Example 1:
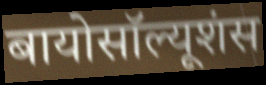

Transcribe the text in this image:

बायोसॉल्यूशंस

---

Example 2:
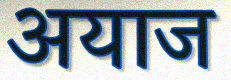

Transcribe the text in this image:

अयाज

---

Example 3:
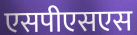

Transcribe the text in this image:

एसपीएसएस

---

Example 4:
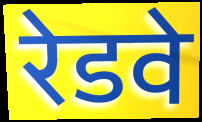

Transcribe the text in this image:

रेडवे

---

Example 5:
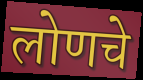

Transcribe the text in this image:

लोणचे